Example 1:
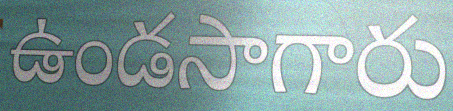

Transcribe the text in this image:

ఉండసాగారు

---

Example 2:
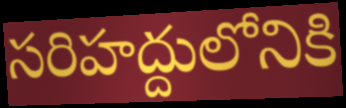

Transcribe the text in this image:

సరిహద్దులోనికి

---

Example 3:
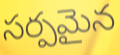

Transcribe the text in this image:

సర్పమైన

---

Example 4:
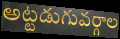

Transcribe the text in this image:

అట్టడుగువర్గాల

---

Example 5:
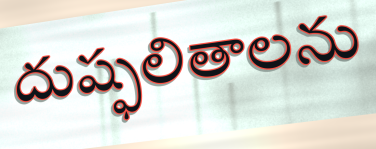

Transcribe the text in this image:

దుష్ఫలితాలను